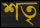
শতৃ